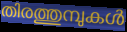
തിരത്തുമ്പുകൾ